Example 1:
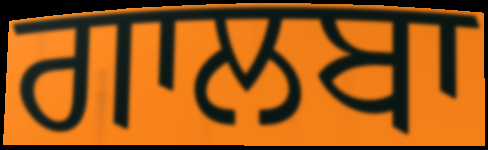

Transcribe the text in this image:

ਗਾਲਬਾ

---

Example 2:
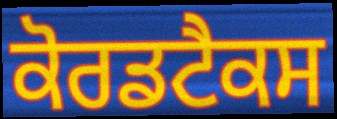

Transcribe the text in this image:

ਕੋਰਡਟੈਕਸ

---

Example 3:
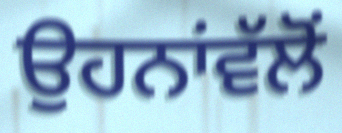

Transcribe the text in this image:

ਉਹਨਾਂਵੱਲੋਂ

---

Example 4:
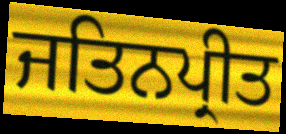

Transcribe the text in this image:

ਜਤਿਨਪ੍ਰੀਤ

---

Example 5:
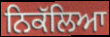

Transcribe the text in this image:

ਨਿਕੱਲਿਆ